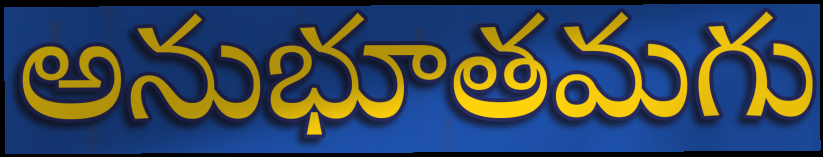
అనుభూతమగు